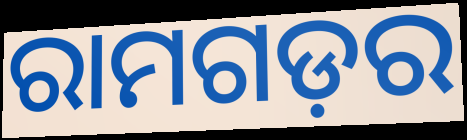
ରାମଗଡ଼ର